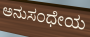
ಅನುಸಂಧೇಯ